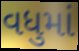
વધુમાં